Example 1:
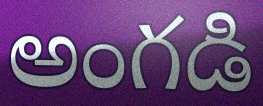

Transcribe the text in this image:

అంగడి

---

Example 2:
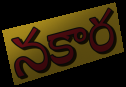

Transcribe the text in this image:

నకార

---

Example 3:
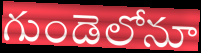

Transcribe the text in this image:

గుండెలోనూ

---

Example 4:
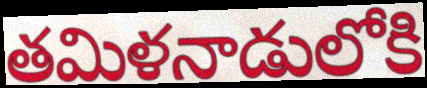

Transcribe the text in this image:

తమిళనాడులోకి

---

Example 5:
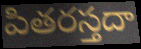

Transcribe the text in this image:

పితరస్తదా